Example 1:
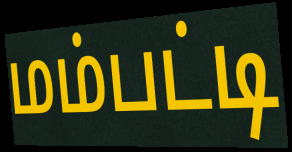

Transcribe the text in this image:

மம்பட்டி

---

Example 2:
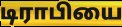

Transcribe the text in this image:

டிராபியை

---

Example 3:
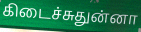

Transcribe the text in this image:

கிடைச்சுதுன்னா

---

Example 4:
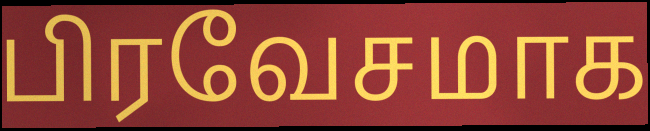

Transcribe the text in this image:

பிரவேசமாக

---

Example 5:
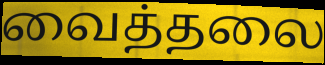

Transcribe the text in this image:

வைத்தலை